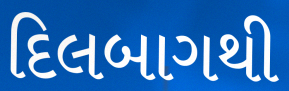
દિલબાગથી